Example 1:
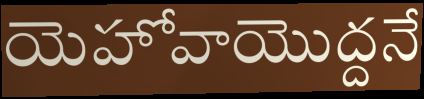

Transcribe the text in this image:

యెహోవాయొద్దనే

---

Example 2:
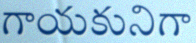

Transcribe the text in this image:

గాయకునిగా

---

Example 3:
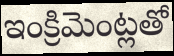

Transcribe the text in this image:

ఇంక్రిమెంట్లతో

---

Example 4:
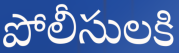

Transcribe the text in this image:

పోలీసులకి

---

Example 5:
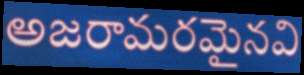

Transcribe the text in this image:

అజరామరమైనవి